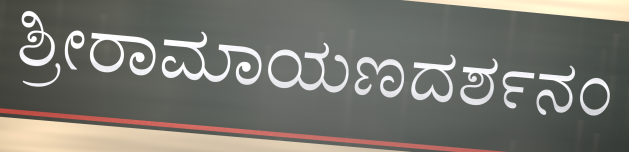
ಶ್ರೀರಾಮಾಯಣದರ್ಶನಂ